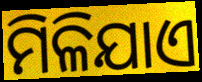
ମିଳିଯାଏ